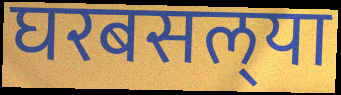
घरबसल्या